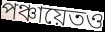
পঞ্চায়েতও